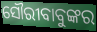
ସୌରୀବାବୁଙ୍କର